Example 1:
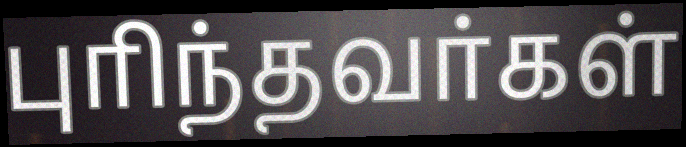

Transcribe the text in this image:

புரிந்தவர்கள்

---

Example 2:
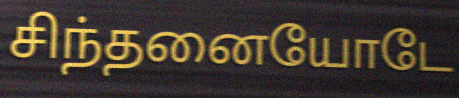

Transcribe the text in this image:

சிந்தனையோடே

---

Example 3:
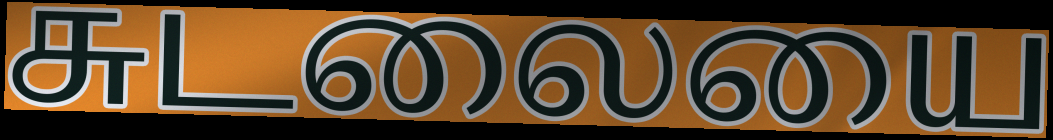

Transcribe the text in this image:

சுடலையை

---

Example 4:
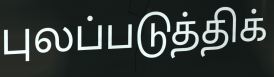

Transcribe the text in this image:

புலப்படுத்திக்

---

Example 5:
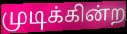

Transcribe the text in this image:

முடிக்கின்ற